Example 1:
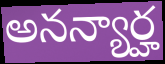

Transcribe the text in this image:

అనన్యార్హ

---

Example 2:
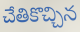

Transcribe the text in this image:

చేతికొచ్చిన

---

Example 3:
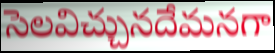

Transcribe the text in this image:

సెలవిచ్చునదేమనగా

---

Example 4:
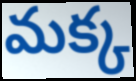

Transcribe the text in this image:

మక్క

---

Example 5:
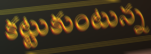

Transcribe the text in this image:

కట్టుకుంటున్న